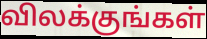
விலக்குங்கள்